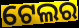
ଟେଲର